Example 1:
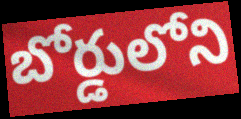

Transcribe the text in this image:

బోర్డులోని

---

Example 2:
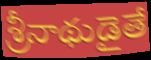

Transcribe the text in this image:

శ్రీనాథుడైతే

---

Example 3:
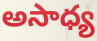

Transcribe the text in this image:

అసాధ్య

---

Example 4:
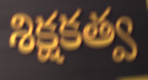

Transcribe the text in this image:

శిక్షకత్వ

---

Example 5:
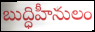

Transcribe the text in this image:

బుద్ధిహీనులం